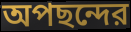
অপছন্দের